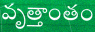
వృత్తాంతం